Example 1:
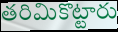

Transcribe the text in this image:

తరిమికొట్టారు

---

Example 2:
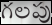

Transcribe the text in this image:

గలపు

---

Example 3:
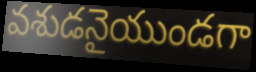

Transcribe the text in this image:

వశుడనైయుండగా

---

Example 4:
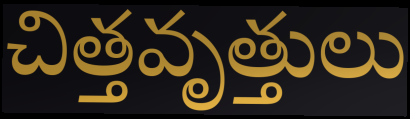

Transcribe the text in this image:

చిత్తవృత్తులు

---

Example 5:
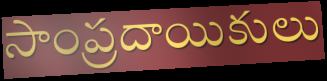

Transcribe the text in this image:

సాంప్రదాయికులు